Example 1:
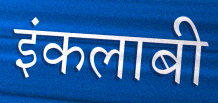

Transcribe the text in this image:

इंकलाबी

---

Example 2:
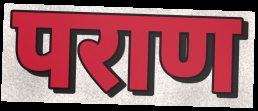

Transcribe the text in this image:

पराण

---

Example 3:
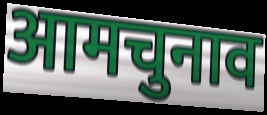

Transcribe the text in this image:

आमचुनाव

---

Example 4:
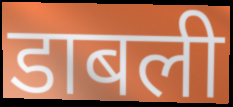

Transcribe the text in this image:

डाबली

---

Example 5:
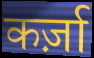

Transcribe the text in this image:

कर्ज़ा